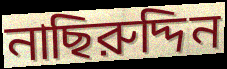
নাছিৰুদ্দিন